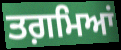
ਤਗ਼ਮਿਆਂ